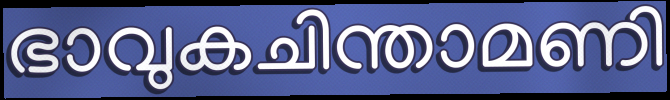
ഭാവുകചിന്താമണി